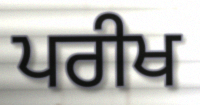
ਪਰੀਖ